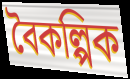
বৈকল্পিক